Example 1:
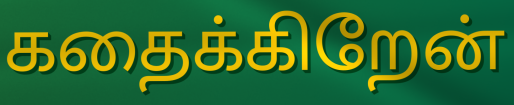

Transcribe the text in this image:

கதைக்கிறேன்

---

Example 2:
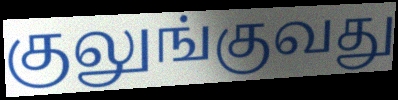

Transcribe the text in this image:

குலுங்குவது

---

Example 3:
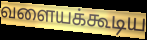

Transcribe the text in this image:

வளையக்கூடிய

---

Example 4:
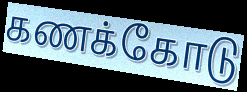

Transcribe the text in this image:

கணக்கோடு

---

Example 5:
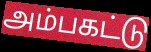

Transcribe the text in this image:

அம்பகட்டு